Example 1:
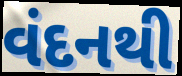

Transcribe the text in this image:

વંદનથી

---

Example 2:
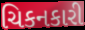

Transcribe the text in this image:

ચિકનકારી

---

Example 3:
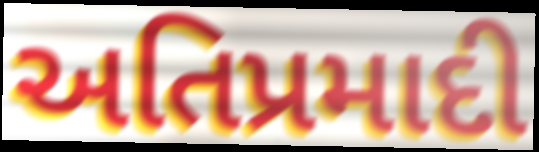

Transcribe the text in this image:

અતિપ્રમાદી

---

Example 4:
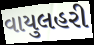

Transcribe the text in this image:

વાયુલહરી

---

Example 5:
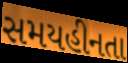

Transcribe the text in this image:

સમયહીનતા